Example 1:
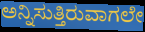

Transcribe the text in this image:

ಅನ್ನಿಸುತ್ತಿರುವಾಗಲೇ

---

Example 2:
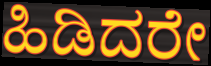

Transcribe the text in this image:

ಹಿಡಿದರೇ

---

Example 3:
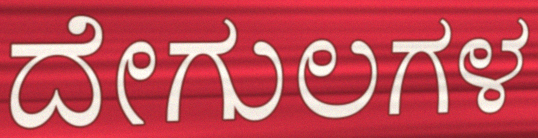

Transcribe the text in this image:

ದೇಗುಲಗಳ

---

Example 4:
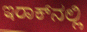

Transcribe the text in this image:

ಇರಾಕ್‍ನಲ್ಲಿ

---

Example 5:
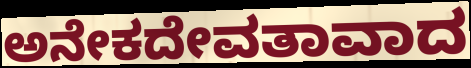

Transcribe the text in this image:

ಅನೇಕದೇವತಾವಾದ